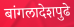
बांगलादेशपुढे